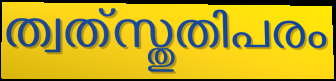
ത്വത്സ്തുതിപരം